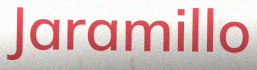
Jaramillo